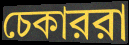
চেকাররা